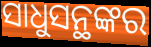
ସାଧୁସନ୍ଥଙ୍କର